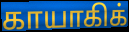
காயாகிக்